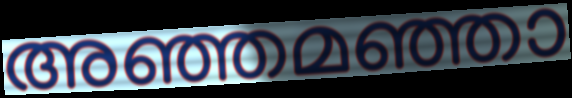
അഞ്ഞമഞ്ഞാ